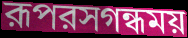
রূপরসগন্ধময়